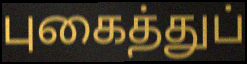
புகைத்துப்